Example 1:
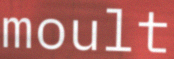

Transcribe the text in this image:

moult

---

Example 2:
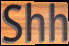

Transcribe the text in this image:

Shh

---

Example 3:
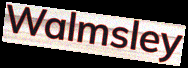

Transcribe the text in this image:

Walmsley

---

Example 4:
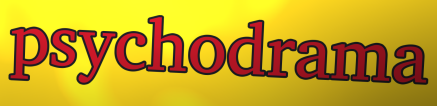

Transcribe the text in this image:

psychodrama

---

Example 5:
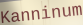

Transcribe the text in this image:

Kanninum